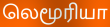
லெமூரியா